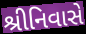
શ્રીનિવાસે